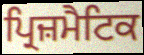
ਪ੍ਰਿਜ਼ਮੈਟਿਕ